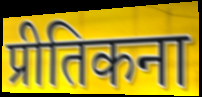
प्रीतिकना